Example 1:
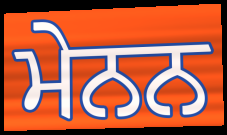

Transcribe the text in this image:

ਮੇਨਨ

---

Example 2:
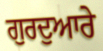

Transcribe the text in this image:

ਗੁਰਦੁਆਰੇ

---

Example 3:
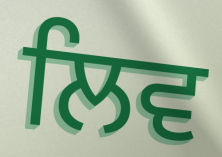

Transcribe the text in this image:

ਲਿਵ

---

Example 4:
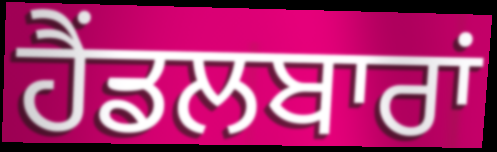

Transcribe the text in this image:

ਹੈਂਡਲਬਾਰਾਂ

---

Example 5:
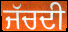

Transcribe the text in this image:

ਜੱਚਦੀ